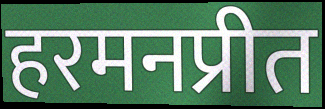
हरमनप्रीत